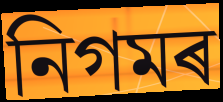
নিগমৰ